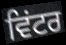
ਵਿਂਟਰ